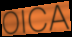
OICA